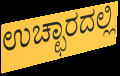
ಉಚ್ಛಾರದಲ್ಲಿ